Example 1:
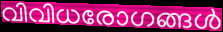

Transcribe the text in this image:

വിവിധരോഗങ്ങൾ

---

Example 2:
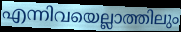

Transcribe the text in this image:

എന്നിവയെല്ലാത്തിലും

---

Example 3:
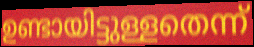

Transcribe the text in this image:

ഉണ്ടായിട്ടുള്ളതെന്ന്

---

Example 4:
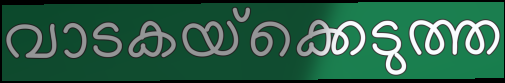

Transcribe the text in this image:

വാടകയ്‌ക്കെടുത്ത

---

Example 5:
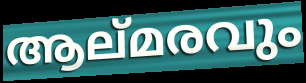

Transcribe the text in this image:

ആല്മരവും